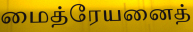
மைத்ரேயனைத்